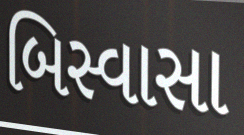
બિસ્વાસા